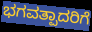
ಭಗವತ್ಪಾದರಿಗೆ